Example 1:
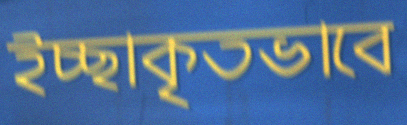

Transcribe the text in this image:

ইচ্ছাকৃতভাবে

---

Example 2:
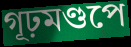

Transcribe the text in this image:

গূঢ়মণ্ডপে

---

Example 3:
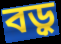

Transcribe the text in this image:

বড়ু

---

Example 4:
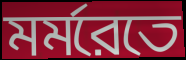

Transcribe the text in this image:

মর্মরেতে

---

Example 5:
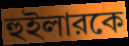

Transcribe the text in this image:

হুইলারকে